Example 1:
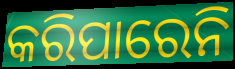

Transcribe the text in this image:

କରିପାରେନି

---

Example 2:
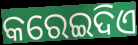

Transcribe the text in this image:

କରେଇଦିଏ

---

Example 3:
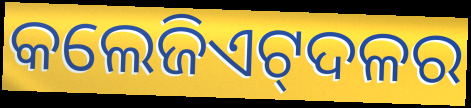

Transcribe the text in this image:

କଲେଜିଏଟ୍‍ଦଳର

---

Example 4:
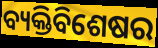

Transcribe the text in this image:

ବ୍ୟକ୍ତିବିଶେଷର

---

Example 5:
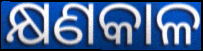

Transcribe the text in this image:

କ୍ଷଣକାଳ